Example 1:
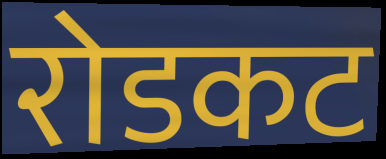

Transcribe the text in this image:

रोडकट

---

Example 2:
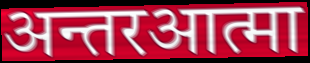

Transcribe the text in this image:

अन्तरआत्मा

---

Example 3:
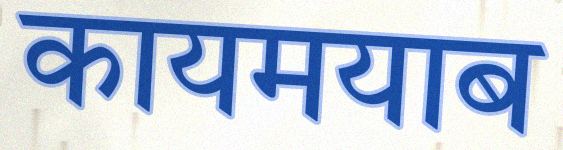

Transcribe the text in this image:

कायमयाब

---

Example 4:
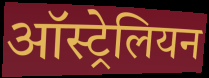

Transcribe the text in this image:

ऑस्ट्रेलियन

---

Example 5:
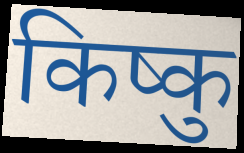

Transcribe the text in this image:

किष्कु